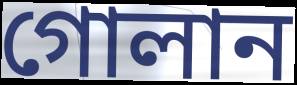
গোলান